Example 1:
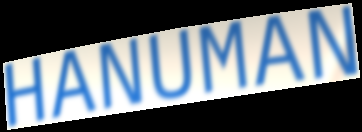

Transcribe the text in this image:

HANUMAN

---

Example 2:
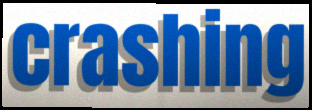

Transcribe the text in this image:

crashing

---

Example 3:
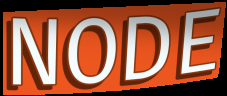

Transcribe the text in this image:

NODE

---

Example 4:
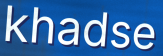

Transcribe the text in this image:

khadse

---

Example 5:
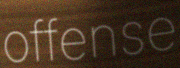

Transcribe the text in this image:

offense